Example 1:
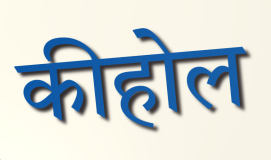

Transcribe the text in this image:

कीहोल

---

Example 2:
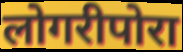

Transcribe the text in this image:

लोगरीपोरा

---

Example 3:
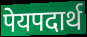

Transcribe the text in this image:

पेयपदार्थ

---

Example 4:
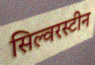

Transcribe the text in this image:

सिल्वरस्टीन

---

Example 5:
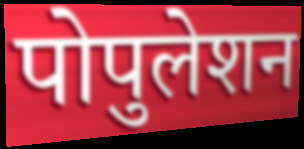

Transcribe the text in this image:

पोपुलेशन